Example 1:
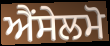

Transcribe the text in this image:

ਐਂਸੇਲਮੋ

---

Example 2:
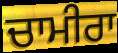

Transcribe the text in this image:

ਚਾਮੀਰਾ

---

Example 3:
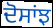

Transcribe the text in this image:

ਦੋਸਾਂਝ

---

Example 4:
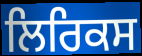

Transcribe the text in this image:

ਲਿਰਿਕਸ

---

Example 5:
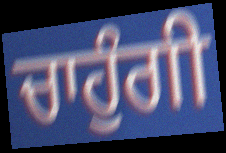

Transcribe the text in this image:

ਚਾਹੁੰਗੀ